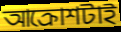
আক্রোশটাই